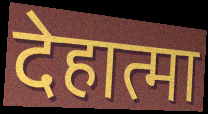
देहात्मा